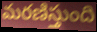
మరణిస్తుంది